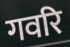
गवरि